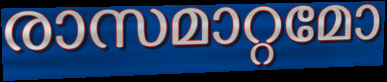
രാസമാറ്റമോ